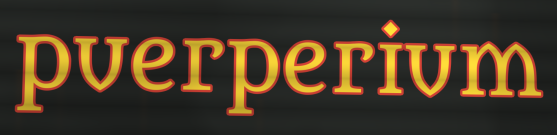
puerperium